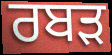
ਰਬੜ